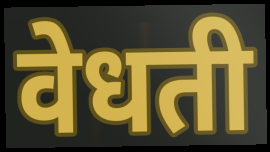
वेधती